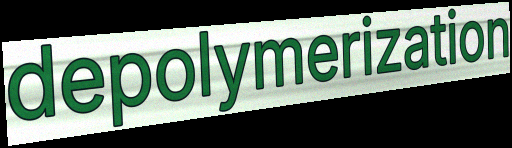
depolymerization